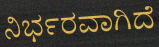
ನಿರ್ಭರವಾಗಿದೆ